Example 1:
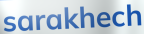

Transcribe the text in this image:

sarakhech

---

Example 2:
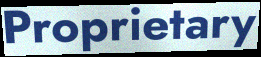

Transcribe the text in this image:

Proprietary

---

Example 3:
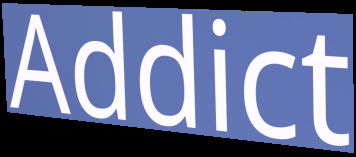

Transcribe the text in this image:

Addict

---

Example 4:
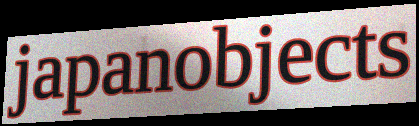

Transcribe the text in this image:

japanobjects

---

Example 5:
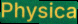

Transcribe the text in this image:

Physica